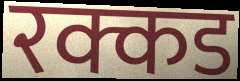
रक्कड